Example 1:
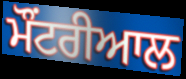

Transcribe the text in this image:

ਮੌਂਟਰੀਆਲ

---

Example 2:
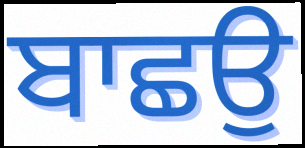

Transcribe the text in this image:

ਬਾਛਉ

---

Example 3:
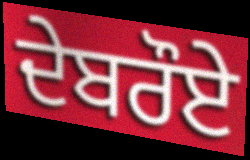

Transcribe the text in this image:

ਦੇਬਰੌਏ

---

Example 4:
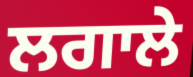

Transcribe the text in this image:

ਲਗਾਲੇ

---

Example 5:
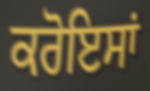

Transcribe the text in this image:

ਕਰੋਇਸਾਂ